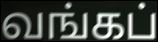
வங்கப்